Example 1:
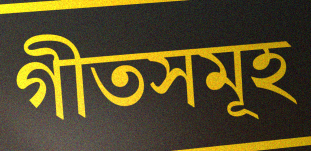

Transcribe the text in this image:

গীতসমূহ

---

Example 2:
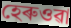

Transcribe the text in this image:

হেৰুওৱা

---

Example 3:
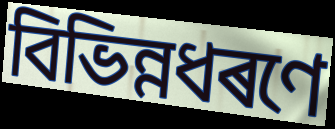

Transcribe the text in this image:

বিভিন্নধৰণে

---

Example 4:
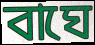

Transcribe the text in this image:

বাঘে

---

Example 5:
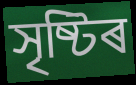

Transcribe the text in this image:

সৃষ্টিৰ